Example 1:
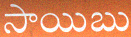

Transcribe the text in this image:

సాయిబు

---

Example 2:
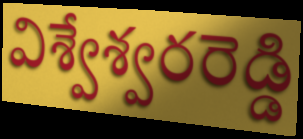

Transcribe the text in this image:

విశ్వేశ్వరరెడ్డి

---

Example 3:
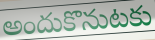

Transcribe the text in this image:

అందుకొనుటకు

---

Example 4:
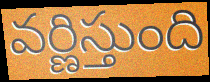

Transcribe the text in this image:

వర్ణిస్తుంది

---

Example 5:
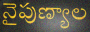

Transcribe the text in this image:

నైపుణ్యాల